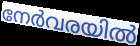
നേർവരയിൽ